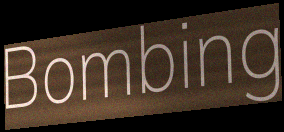
Bombing